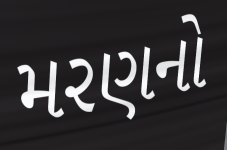
મરણનો